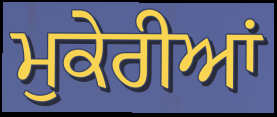
ਮੁਕੇਰੀਆਂ